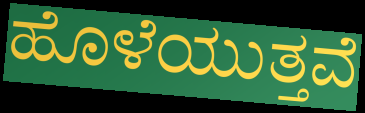
ಹೊಳೆಯುತ್ತವೆ